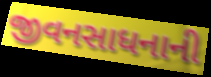
જીવનસાધનાની